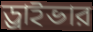
ড্রাইভার